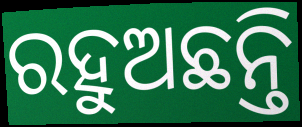
ରହୁଅଛନ୍ତି